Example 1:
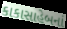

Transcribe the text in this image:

કાકાસાહેબનાં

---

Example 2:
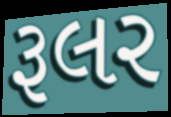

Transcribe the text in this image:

રૂલર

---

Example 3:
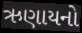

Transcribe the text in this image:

ઋણાયનો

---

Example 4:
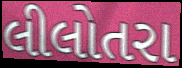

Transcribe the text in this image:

લીલોતરા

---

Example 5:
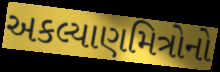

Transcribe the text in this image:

અકલ્યાણમિત્રોનો